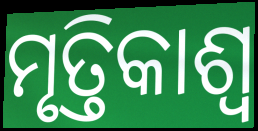
ମୃତ୍ତିକାଶ୍ୱ